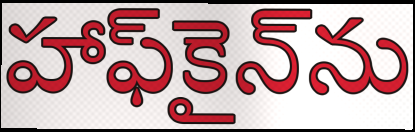
హాఫ్‌కైన్‌ను